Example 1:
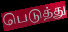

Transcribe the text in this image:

பெடுத்து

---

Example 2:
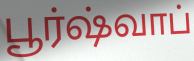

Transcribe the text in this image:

பூர்ஷ்வாப்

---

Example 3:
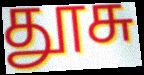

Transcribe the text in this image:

தூசு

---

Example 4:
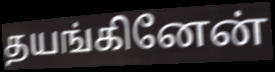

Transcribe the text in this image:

தயங்கினேன்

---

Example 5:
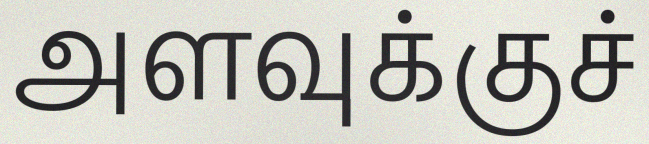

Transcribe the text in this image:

அளவுக்குச்